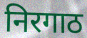
निरगाठ